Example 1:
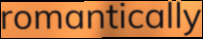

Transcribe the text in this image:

romantically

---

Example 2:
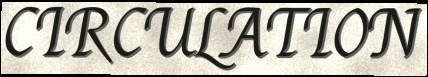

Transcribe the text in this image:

CIRCULATION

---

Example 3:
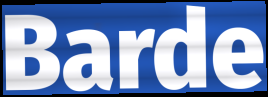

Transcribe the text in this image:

Barde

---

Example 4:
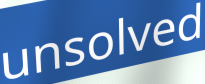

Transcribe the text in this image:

unsolved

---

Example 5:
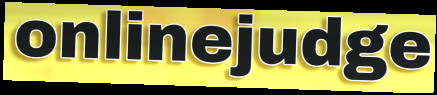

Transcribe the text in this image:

onlinejudge